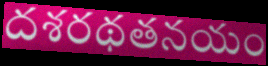
దశరథతనయం